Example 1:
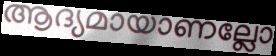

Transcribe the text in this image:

ആദ്യമായാണല്ലോ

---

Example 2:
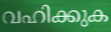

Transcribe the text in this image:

വഹിക്കുക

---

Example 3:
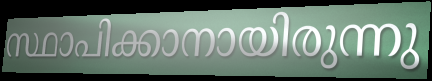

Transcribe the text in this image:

സ്ഥാപിക്കാനായിരുന്നു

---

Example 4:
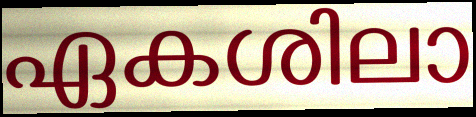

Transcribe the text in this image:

ഏകശിലാ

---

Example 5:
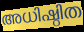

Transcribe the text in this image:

അധിഷ്ഠിത